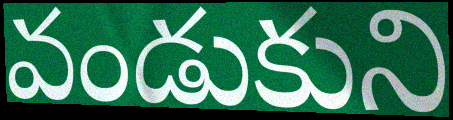
వండుకుని